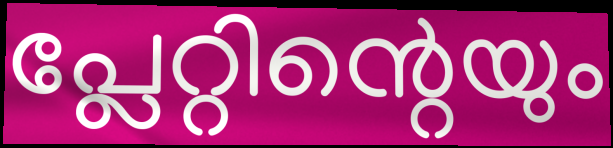
പ്ലേറ്റിന്റെയും